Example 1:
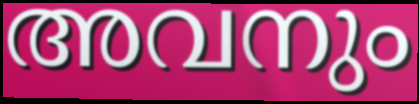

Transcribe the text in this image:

അവനും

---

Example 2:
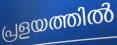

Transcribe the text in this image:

പ്രളയത്തിൽ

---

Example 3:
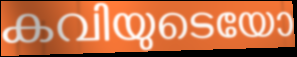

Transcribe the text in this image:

കവിയുടെയോ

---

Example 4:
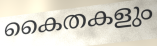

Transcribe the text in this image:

കൈതകളും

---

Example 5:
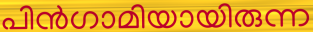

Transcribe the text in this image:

പിൻഗാമിയായിരുന്ന